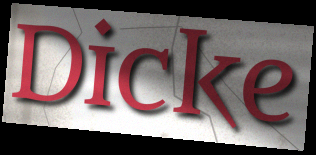
Dicke